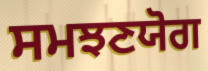
ਸਮਝਣਯੋਗ